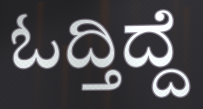
ಓದ್ತಿದ್ದೆ